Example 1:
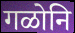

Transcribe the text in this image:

गळोनि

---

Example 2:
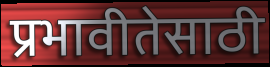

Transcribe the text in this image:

प्रभावीतेसाठी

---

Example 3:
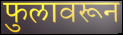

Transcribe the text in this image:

फुलावरून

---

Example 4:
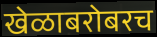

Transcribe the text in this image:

खेळाबरोबरच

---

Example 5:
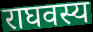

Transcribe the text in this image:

राघवस्य